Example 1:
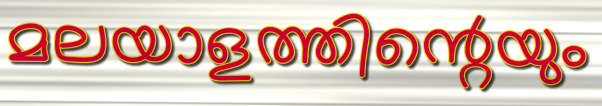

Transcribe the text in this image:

മലയാളത്തിന്റെയും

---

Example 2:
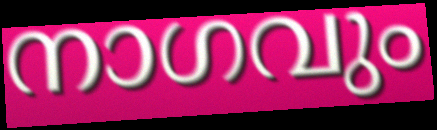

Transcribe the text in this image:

നാഗവും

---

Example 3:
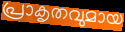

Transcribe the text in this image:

പ്രാകൃതവുമായ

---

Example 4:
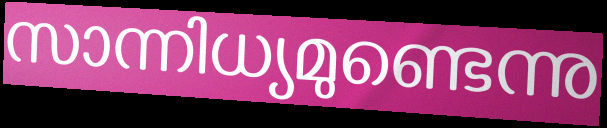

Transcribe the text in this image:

സാന്നിധ്യമുണ്ടെന്നു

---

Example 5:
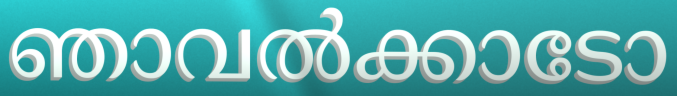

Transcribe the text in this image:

ഞാവൽക്കാടോ